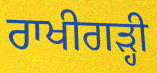
ਰਾਖੀਗੜ੍ਹੀ